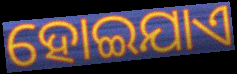
ହୋଇଯାଏ